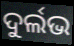
ଦୁର୍ଲଭ